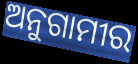
ଅନୁଗାମୀର